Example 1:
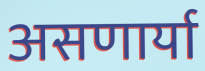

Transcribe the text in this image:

असणार्या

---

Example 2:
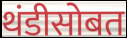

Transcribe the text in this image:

थंडीसोबत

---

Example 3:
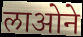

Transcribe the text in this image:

लाओने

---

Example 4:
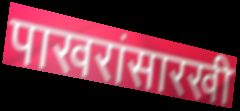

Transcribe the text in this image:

पाखरांसारखी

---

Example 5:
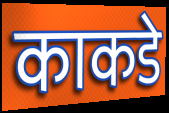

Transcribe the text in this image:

काकडे